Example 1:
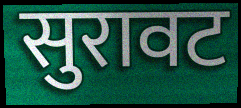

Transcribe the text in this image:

सुरावट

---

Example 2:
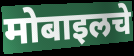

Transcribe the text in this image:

मोबाइलचे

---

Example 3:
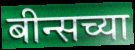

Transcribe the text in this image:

बीन्सच्या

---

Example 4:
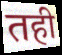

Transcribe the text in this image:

तही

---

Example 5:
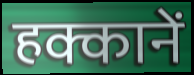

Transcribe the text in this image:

हक्कानें